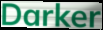
Darker